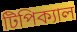
টিপিক্যাল